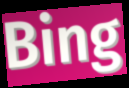
Bing